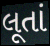
લૂતાં